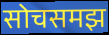
सोचसमझ